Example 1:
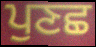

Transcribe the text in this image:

ਪੁਣਛ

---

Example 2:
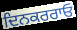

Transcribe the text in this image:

ਦਿਨਕਰਰਾਓ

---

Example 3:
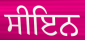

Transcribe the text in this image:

ਸੀਇਨ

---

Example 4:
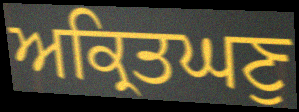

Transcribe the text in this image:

ਅਕ੍ਰਿਤਘਣੁ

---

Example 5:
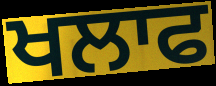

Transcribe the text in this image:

ਖਲਾਫ